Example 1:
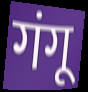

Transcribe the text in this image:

गंगू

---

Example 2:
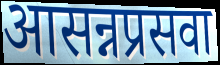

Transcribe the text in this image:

आसन्नप्रसवा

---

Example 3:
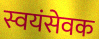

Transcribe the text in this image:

स्वयंसेवक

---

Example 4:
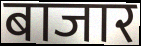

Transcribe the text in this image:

बाजार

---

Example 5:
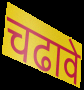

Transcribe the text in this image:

चढावे